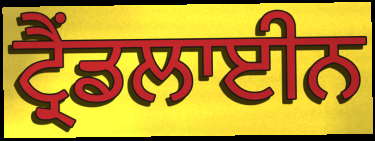
ਟ੍ਰੈਂਡਲਾਈਨ